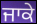
ਜਾਕੇ